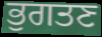
ਭੁਗਤਣ